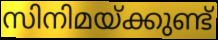
സിനിമയ്ക്കുണ്ട്